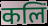
कलिं